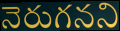
నెరుగనని